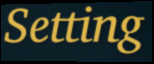
Setting